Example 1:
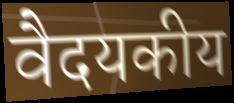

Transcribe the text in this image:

वैदयकीय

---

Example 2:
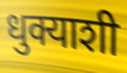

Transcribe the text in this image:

धुक्याशी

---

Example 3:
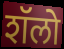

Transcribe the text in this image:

शॅलो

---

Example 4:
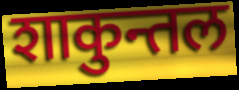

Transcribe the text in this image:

शाकुन्तल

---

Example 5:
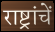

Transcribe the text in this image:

राष्ट्रांचें